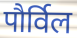
पौर्विल